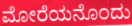
ಮೋರೆಯನೊಂದು